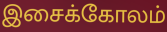
இசைக்கோலம்